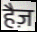
हैज़